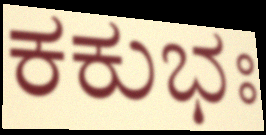
ಕಕುಭಃ